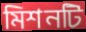
মিশনটি